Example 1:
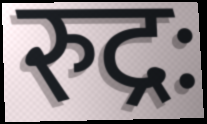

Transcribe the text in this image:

रुद्रः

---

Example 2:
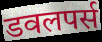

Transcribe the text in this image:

डवलपर्स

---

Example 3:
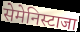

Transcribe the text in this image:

सेमेनिस्टाजा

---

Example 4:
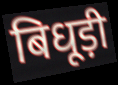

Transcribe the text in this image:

बिधूड़ी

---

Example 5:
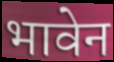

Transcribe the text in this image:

भावेन